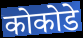
कोकोडे